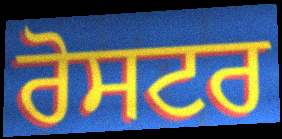
ਰੋਸਟਰ